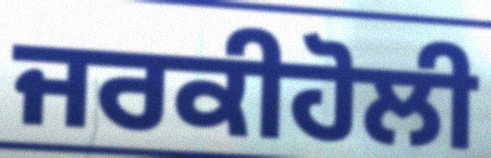
ਜਰਕੀਹੋਲੀ